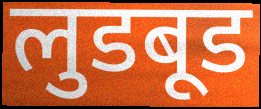
लुडबूड